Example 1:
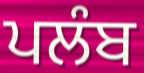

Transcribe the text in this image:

ਪਲੰਬ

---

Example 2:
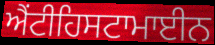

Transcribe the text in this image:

ਐਂਟੀਹਿਸਟਾਮਾਈਨ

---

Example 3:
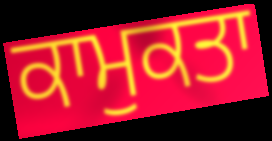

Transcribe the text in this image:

ਕਾਮੁਕਤਾ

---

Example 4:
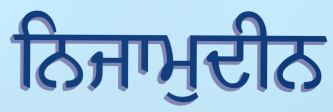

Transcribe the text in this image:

ਨਿਜਾਮੁਦੀਨ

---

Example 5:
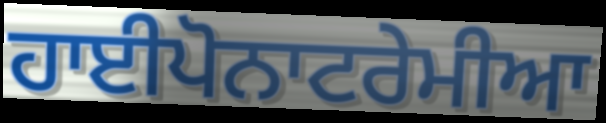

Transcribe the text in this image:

ਹਾਈਪੋਨਾਟਰੇਮੀਆ